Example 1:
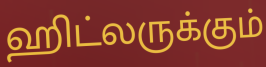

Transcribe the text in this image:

ஹிட்லருக்கும்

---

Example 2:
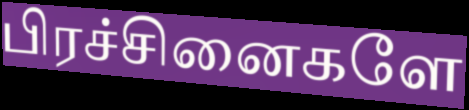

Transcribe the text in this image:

பிரச்சினைகளே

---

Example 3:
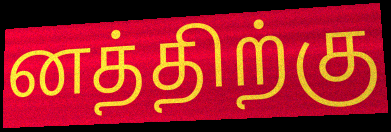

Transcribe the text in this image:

னத்திற்கு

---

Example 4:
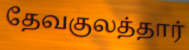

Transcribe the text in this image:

தேவகுலத்தார்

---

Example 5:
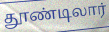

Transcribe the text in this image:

தூண்டிலார்